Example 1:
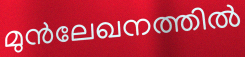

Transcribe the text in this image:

മുൻലേഖനത്തിൽ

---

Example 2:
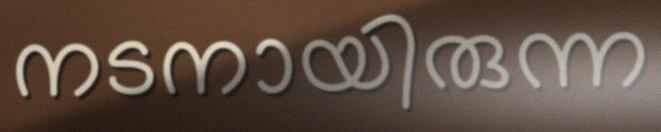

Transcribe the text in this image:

നടനായിരുന്ന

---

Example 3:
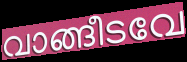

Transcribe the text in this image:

വാങ്ങീടവേ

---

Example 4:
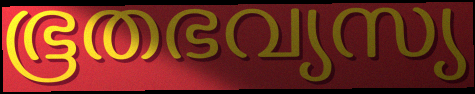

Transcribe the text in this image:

ഭൂതഭവ്യസ്യ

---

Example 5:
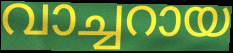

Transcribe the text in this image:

വാച്ചറായ